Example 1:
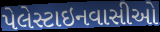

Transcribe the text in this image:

પેલેસ્ટાઇનવાસીઓ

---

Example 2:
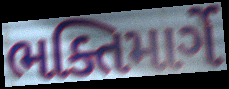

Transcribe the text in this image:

ભક્તિમાર્ગે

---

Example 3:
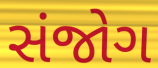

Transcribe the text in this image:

સંજોગ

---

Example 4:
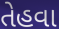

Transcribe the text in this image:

તેહવા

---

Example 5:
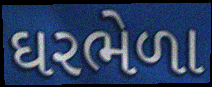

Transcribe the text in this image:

ઘરભેળા